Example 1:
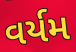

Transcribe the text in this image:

વર્યમ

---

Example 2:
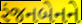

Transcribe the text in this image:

રંજનબેનને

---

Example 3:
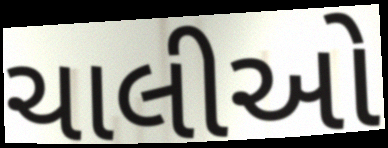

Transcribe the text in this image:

ચાલીઓ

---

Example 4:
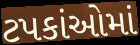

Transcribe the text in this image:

ટપકાંઓમાં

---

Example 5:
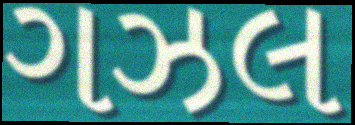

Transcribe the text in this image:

ગઝલ